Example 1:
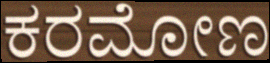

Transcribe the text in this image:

ಕರಮೋಣ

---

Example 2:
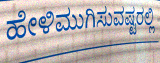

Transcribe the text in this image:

ಹೇಳಿಮುಗಿಸುವಷ್ಟರಲ್ಲಿ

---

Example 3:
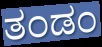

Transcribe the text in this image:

ತಂಡಂ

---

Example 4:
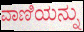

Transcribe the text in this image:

ವಾಣಿಯನ್ನು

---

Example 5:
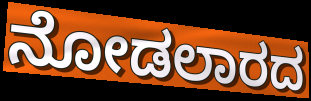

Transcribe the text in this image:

ನೋಡಲಾರದ